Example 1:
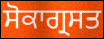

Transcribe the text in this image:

ਸੋਕਾਗ੍ਰਸਤ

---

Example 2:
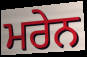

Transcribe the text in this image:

ਮਰੇਨ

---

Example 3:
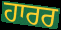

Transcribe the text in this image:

ਹਾਰਰ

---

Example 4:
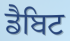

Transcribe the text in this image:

ਡੈਬਿਟ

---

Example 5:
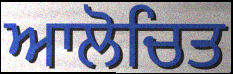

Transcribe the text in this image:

ਆਲੋਚਿਤ